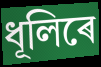
ধূলিৰে